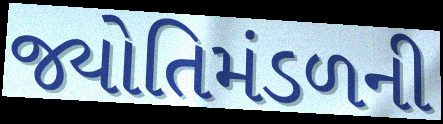
જ્યોતિમંડળની